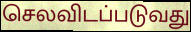
செலவிடப்படுவது